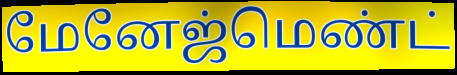
மேனேஜ்மெண்ட்